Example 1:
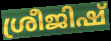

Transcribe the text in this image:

ശ്രീജിഷ്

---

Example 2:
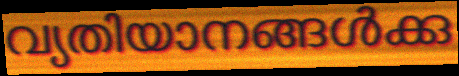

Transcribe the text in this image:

വ്യതിയാനങ്ങൾക്കു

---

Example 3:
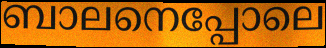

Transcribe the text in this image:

ബാലനെപ്പോലെ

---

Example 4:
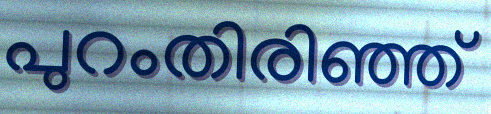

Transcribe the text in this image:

പുറംതിരിഞ്ഞ്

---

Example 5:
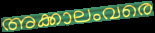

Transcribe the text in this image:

അക്കാലംവരെ